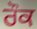
ਰੌਕ